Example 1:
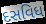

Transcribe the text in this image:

દસવિધ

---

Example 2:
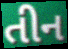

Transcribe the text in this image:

તીન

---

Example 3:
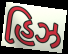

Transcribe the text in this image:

હિઝ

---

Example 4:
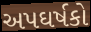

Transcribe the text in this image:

અપઘર્ષકો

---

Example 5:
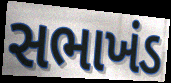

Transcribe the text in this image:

સભાખંડ